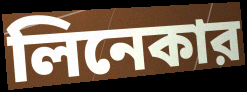
লিনেকার